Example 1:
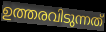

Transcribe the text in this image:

ഉത്തരവിടുന്നത്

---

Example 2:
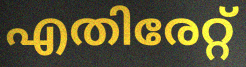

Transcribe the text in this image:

എതിരേറ്റ്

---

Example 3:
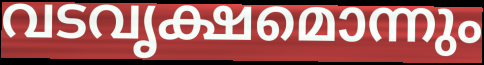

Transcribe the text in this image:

വടവൃക്ഷമൊന്നും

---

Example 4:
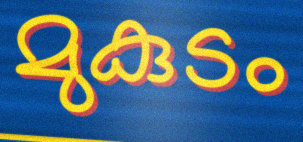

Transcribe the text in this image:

മുകുടം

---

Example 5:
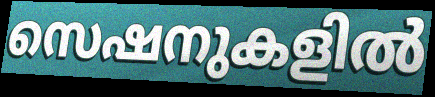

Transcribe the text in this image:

സെഷനുകളിൽ